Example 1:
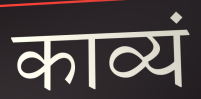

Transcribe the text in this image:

काव्यं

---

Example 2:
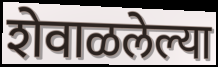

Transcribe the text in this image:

शेवाळलेल्या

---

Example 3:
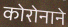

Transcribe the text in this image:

कोरोनाने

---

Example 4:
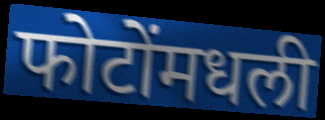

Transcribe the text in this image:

फोटोंमधली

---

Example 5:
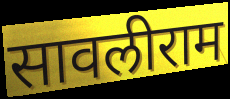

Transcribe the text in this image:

सावलीराम